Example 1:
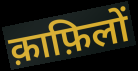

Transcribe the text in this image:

क़ाफ़िलों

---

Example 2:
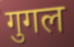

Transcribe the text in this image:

गुगल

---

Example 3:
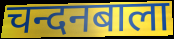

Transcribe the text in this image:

चन्दनबाला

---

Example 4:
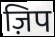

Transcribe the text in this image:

ज़िप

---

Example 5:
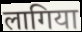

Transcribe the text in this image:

लागिया